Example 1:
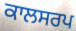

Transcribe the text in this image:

ਕਾਲਸਰਪ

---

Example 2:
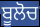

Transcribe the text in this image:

ਬੂਲੋਚ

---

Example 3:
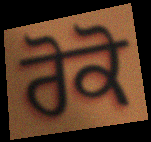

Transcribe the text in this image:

ਰੋਕੋ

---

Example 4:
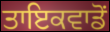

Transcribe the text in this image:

ਤਾਇਕਵਾਡੋਂ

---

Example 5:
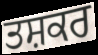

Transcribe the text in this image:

ਤਸ਼ਕਰ